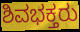
ಶಿವಭಕ್ತರು